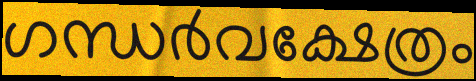
ഗന്ധർവക്ഷേത്രം